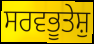
ਸਰਵਭੂਤੇਸ਼ੁ